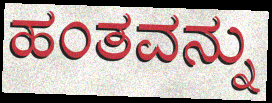
ಹಂತವನ್ನು